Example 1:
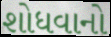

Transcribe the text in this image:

શોધવાનો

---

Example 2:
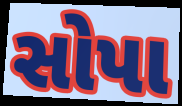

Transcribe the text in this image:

સોપા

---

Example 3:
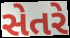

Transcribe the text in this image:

સેતરે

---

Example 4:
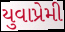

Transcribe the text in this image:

યુવાપ્રેમી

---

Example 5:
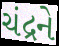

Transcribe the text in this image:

ચંદ્રને